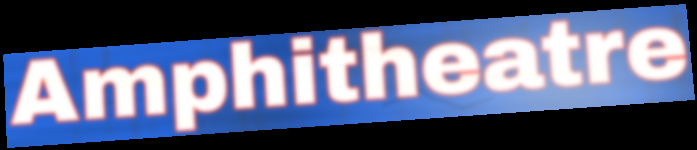
Amphitheatre